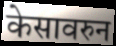
केसावरुन